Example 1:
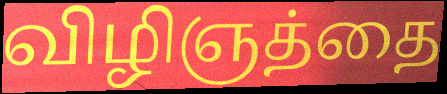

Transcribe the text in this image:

விழிஞத்தை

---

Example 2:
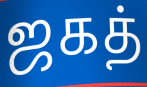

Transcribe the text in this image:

ஜகத்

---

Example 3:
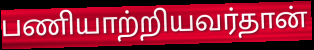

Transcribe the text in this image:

பணியாற்றியவர்தான்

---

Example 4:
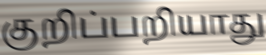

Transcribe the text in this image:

குறிப்பறியாது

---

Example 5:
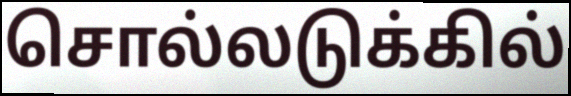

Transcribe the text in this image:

சொல்லடுக்கில்